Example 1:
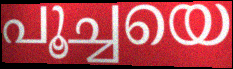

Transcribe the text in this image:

പൂച്ചയെ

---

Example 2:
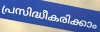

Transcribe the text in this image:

പ്രസിദ്ധീകരിക്കാം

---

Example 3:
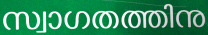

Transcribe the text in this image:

സ്വാഗതത്തിനു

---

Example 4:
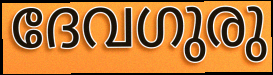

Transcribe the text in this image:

ദേവഗുരു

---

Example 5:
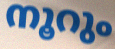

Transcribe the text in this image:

നൂറും